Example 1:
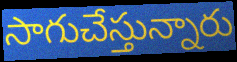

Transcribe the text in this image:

సాగుచేస్తున్నారు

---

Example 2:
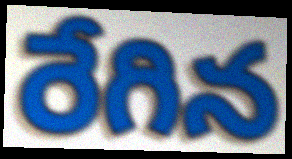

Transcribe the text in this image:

రేగిన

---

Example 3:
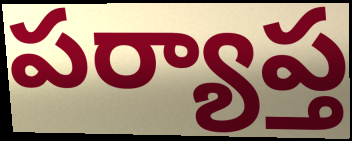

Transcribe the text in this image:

పర్యాప్త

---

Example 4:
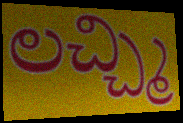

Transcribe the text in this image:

లచ్చ్మి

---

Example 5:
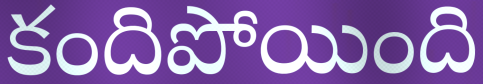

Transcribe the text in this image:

కందిపోయింది